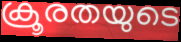
ക്രൂരതയുടെ